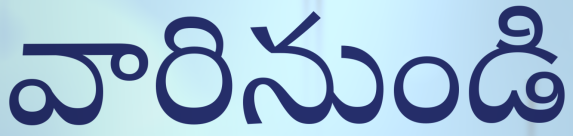
వారినుండి